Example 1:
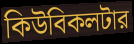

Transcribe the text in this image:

কিউবিকলটার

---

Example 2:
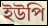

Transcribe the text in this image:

ইউপি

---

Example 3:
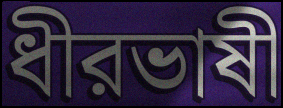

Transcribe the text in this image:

ধীরভাষী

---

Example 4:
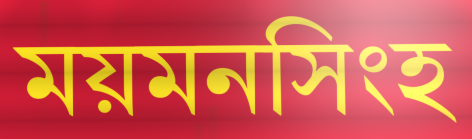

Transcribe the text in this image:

ময়মনসিংহ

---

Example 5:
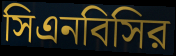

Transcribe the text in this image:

সিএনবিসির